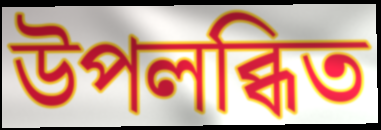
উপলব্ধিত